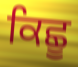
ਕਿਛੂ